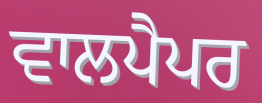
ਵਾਲਪੈਪਰ